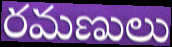
రమణులు